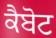
ਕੈਬੋਟ